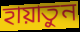
হায়াতুন